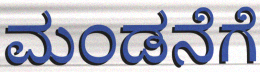
ಮಂಡನೆಗೆ